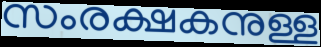
സംരക്ഷകനുള്ള